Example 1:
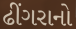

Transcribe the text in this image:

ઢીંગરાનો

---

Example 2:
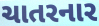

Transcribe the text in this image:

ચાતરનાર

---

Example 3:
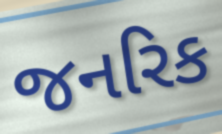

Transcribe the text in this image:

જનરિક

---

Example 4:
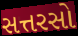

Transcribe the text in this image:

સત્તરસો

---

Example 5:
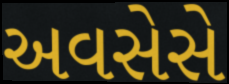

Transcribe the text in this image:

અવસેસે